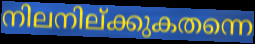
നിലനില്ക്കുകതന്നെ